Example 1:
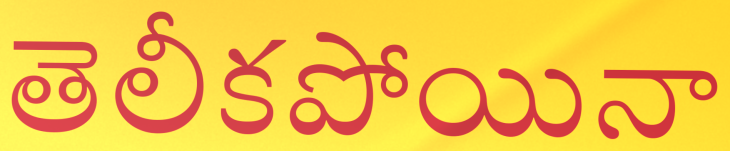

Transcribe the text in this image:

తెలీకపోయినా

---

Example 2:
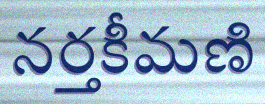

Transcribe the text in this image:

నర్తకీమణి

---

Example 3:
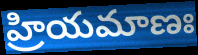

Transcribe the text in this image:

హ్రియమాణః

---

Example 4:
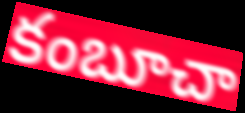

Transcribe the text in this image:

కంబూచా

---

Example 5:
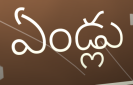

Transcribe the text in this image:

ఏండ్లు